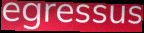
egressus